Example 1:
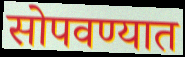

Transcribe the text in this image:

सोपवण्यात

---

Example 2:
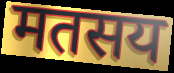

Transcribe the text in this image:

मतसय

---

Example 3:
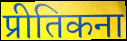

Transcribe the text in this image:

प्रीतिकना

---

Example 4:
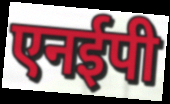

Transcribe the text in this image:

एनईपी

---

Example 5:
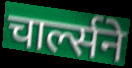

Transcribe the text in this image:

चार्ल्सने